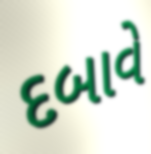
દબાવે